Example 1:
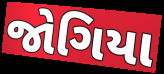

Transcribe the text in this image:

જોગિયા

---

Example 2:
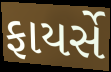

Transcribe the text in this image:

ફાયર્સે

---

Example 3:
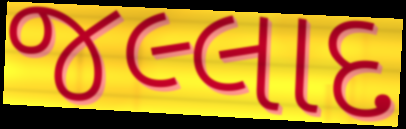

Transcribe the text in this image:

જલ્લાદ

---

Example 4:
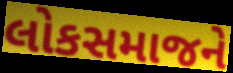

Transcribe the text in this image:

લોકસમાજને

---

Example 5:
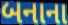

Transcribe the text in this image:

બનાના